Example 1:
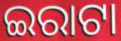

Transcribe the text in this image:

ଇରାଟା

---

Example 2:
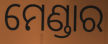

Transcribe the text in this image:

ମେଣ୍ଡାର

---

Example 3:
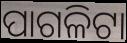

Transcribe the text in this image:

ପାଗଳିଟା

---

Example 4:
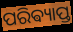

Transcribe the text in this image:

ପରିଵ୍ୟାପ୍ତ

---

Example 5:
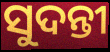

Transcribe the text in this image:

ସୁଦନ୍ତୀ